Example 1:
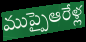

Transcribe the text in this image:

ముప్పైఆరేళ్ల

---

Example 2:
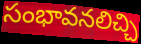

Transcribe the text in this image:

సంభావనలిచ్చి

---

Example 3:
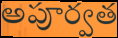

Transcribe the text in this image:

అపూర్వత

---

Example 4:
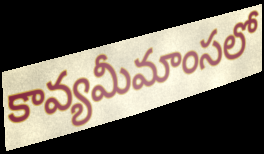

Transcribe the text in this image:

కావ్యమీమాంసలో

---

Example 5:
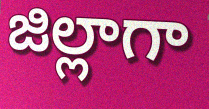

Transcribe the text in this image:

జిల్లాగా